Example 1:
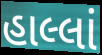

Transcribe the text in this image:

હાલ્લાં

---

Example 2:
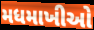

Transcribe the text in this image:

મધમાખીઓ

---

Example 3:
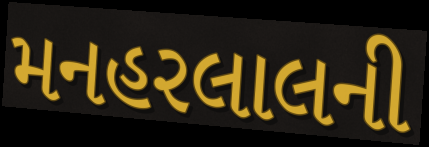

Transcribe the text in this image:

મનહરલાલની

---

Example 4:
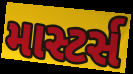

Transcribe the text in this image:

માસ્ટર્સ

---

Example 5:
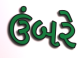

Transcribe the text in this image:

ઉંબરે